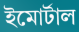
ইমোর্টাল